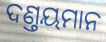
ଦଣ୍ତୟମାନ